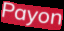
Payon